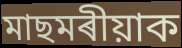
মাছমৰীয়াক